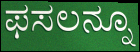
ಫಸಲನ್ನೂ